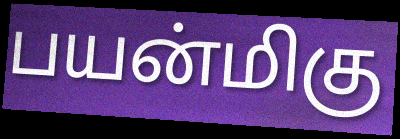
பயன்மிகு